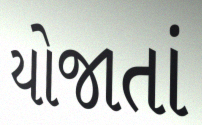
યોજાતાં